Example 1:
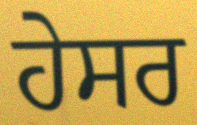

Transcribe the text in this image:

ਹੇਸਰ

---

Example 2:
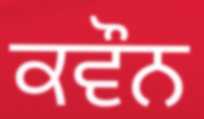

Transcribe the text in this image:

ਕਵੌਨ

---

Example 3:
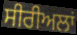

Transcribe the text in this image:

ਸੀਰੀਅਲਾਂ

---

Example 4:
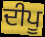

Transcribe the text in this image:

ਦੀਪੂ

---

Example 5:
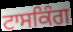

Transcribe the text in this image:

ਟਾਸਕਿੰਗ